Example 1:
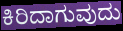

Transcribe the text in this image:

ಕಿರಿದಾಗುವುದು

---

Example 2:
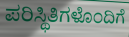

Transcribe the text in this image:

ಪರಿಸ್ಥಿತಿಗಳೊಂದಿಗೆ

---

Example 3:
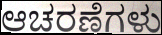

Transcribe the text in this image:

ಆಚರಣೆಗಳು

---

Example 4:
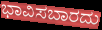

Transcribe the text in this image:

ಭಾವಿಸಬಾರದು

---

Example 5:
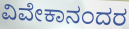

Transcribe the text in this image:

ವಿವೇಕಾನಂದರ